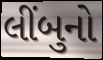
લીંબુનો